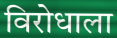
विरोधाला